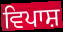
ਵਿਪਾਸ਼